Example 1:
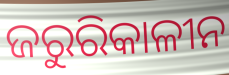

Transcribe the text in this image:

ଜରୁରିକାଳୀନ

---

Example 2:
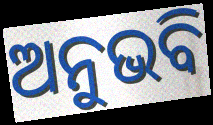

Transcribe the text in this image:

ଅନୁଭବି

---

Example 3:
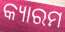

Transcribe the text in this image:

କ୍ୟାରମ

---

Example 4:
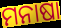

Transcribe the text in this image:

ମନାଷା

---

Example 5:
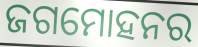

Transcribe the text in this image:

ଜଗମୋହନର